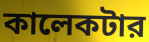
কালেকটার